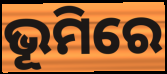
ଭୂମିରେ